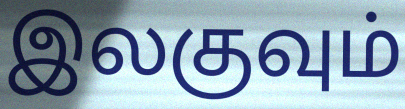
இலகுவும்